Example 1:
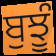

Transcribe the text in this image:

ਬੁਝੂੰ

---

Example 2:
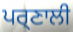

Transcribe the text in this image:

ਪਰ੍ਣਾਲੀ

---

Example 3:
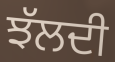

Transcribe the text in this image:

ਝੱਲਦੀ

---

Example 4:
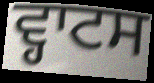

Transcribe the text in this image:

ਵ੍ਹਾਟਸ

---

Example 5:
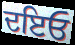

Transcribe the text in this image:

ਦਇਓ